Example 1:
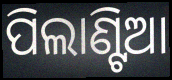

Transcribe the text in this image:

ପିଲାଣ୍ଟିଆ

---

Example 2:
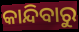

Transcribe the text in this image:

କାନ୍ଦିବାରୁ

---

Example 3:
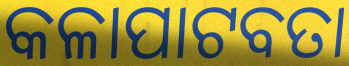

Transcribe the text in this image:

କଳାପାଟବତା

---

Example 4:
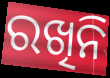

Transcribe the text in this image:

ରଖିନି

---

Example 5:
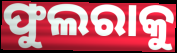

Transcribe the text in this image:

ଫୁଲରାକୁ